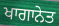
ਖਾਗਾਨੇਤ